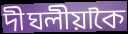
দীঘলীয়াকৈ